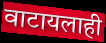
वाटायलाही